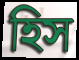
হিস